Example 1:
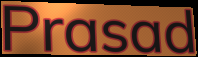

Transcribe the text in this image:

Prasad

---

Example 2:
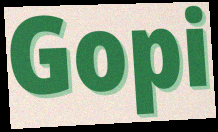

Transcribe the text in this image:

Gopi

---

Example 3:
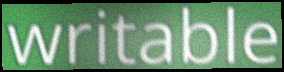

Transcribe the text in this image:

writable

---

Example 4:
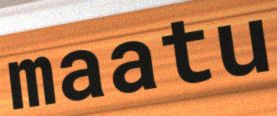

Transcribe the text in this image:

maatu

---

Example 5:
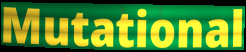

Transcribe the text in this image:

Mutational